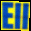
Ell